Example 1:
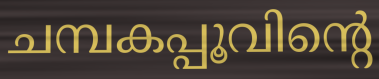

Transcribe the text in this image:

ചമ്പകപ്പൂവിന്റെ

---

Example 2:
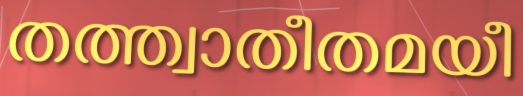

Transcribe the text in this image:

തത്ത്വാതീതമയീ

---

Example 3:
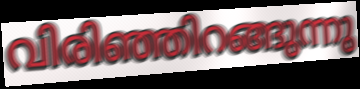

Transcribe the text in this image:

വിരിഞ്ഞിറങ്ങുന്നു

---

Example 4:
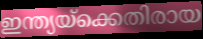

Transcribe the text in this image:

ഇന്ത്യയ്ക്കെതിരായ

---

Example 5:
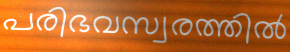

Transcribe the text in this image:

പരിഭവസ്വരത്തിൽ